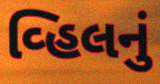
વ્હિલનું